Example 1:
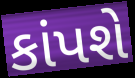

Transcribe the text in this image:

કાંપશે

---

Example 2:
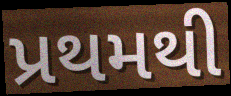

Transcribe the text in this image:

પ્રથમથી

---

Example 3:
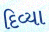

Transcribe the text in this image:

દિવ્યા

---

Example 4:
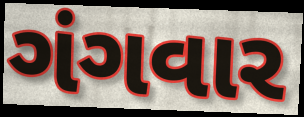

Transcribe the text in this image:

ગંગવાર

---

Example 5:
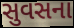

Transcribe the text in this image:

સુવસના